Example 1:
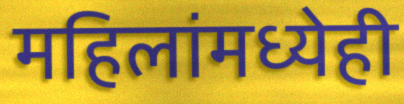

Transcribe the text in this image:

महिलांमध्येही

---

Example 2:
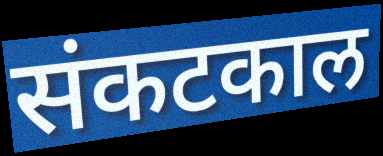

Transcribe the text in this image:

संकटकाल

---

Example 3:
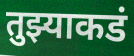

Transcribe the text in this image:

तुझ्याकडं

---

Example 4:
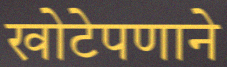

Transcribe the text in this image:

खोटेपणाने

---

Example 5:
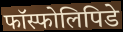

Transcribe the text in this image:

फॉस्फोलिपिडे